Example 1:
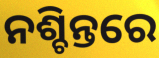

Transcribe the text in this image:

ନଶ୍ଚିନ୍ତରେ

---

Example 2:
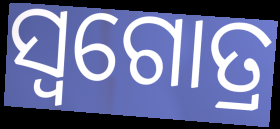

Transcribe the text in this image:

ସ୍ୱଗୋତ୍ର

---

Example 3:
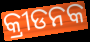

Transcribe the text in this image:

କ୍ରୀଡନକ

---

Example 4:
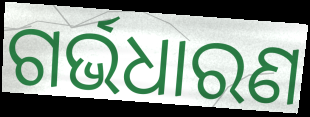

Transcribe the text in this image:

ଗର୍ଭଧାରଣ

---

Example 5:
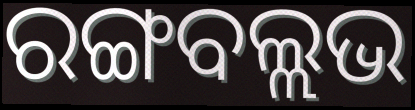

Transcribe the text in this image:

ରଙ୍ଗବଲ୍ଲଭ